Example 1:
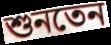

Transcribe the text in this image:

শুনতেন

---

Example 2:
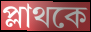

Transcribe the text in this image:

প্লাথকে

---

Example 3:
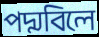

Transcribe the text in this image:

পদ্মবিলে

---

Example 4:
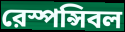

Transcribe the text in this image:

রেস্পন্সিবল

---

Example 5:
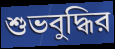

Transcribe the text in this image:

শুভবুদ্ধির